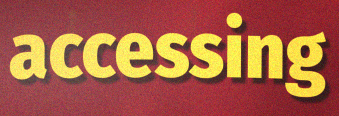
accessing